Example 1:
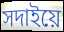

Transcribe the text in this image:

সদাইয়ে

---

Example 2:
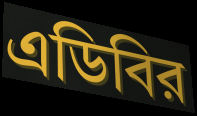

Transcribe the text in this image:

এডিবির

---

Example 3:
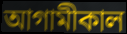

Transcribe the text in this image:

আগামীকাল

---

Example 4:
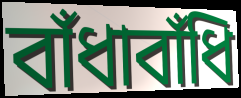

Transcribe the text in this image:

বাঁধাবাঁধি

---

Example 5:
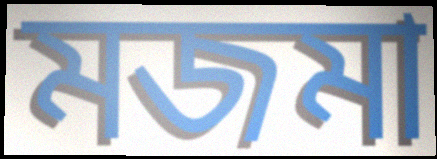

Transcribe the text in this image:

মজমা